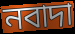
নবাদা